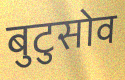
बुटुसोव